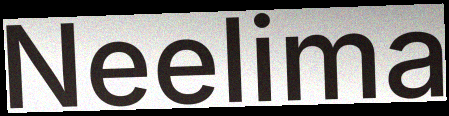
Neelima